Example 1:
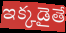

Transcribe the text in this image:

ఇక్కడైతే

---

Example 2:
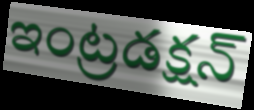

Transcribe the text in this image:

ఇంట్రడక్షన్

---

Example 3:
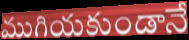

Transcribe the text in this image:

ముగియకుండానే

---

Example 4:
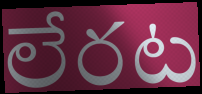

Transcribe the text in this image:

లేరట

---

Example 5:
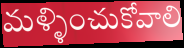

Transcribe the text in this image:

మళ్ళించుకోవాలి